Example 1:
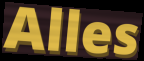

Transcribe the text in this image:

Alles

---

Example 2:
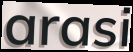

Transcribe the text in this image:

arasi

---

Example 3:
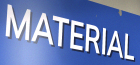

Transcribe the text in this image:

MATERIAL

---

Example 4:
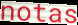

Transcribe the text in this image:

notas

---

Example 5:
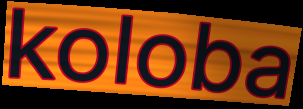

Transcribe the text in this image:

koloba